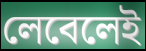
লেবেলেই